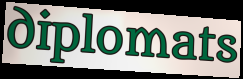
diplomats